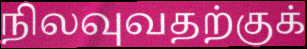
நிலவுவதற்குக்